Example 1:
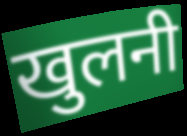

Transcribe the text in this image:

खुलनी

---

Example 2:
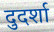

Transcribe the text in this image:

दुदर्शा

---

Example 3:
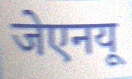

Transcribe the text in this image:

जेएनयू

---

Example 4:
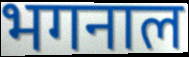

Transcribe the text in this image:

भगनाल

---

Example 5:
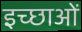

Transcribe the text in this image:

इच्छाओं